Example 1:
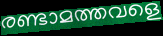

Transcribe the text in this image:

രണ്ടാമത്തവളെ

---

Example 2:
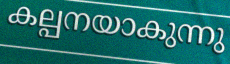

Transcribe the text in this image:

കല്പനയാകുന്നു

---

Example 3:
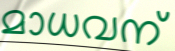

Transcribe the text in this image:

മാധവന്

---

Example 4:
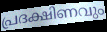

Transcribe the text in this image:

പ്രദക്ഷിണവും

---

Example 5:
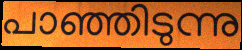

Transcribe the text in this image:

പാഞ്ഞിടുന്നു